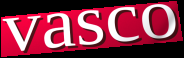
vasco